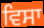
ਵਿਸਾ